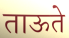
ताऊते